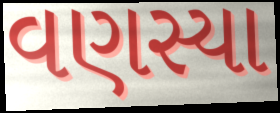
વણસ્યા